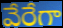
వేరేగా